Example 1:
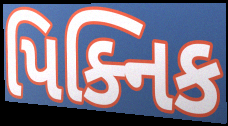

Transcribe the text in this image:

પિક્નિક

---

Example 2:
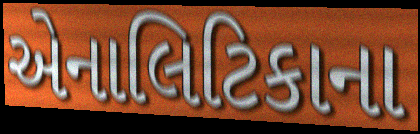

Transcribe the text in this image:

એનાલિટિકાના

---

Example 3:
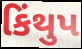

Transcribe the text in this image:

કિંથુપ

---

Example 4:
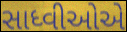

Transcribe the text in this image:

સાધ્વીઓએ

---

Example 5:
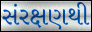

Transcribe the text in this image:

સંરક્ષણથી